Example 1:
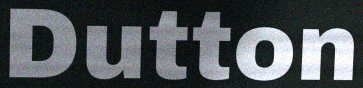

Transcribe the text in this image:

Dutton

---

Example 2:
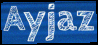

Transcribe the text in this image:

Ayjaz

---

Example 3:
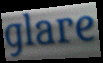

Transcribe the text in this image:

glare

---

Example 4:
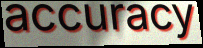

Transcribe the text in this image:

accuracy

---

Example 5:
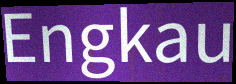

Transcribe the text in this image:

Engkau